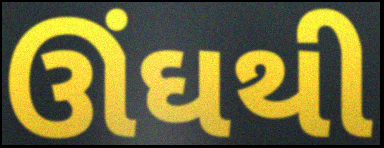
ઊંઘથી